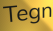
Tegn